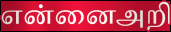
என்னைஅறி